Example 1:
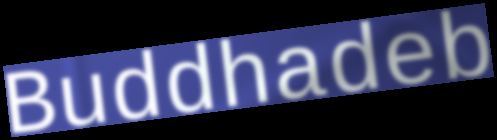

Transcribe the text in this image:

Buddhadeb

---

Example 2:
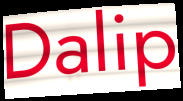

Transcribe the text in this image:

Dalip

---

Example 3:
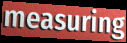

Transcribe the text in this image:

measuring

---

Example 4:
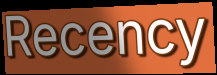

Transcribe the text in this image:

Recency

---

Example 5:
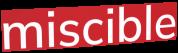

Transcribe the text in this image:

miscible